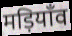
मड़ियाँव